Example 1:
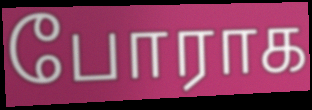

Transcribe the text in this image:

போராக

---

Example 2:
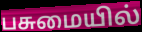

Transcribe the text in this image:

பசுமையில்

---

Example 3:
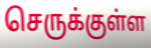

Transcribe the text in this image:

செருக்குள்ள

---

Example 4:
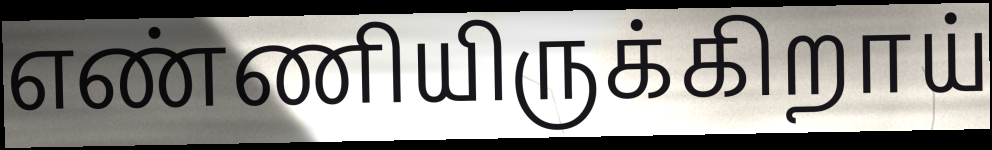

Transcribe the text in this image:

எண்ணியிருக்கிறாய்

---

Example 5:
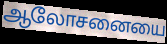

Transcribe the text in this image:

ஆலோசனையை